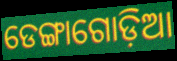
ଡେଙ୍ଗାଗୋଡ଼ିଆ